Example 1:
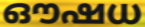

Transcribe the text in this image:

ഔഷധ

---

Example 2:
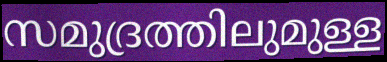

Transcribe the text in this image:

സമുദ്രത്തിലുമുള്ള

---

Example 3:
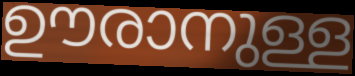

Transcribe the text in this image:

ഊരാനുള്ള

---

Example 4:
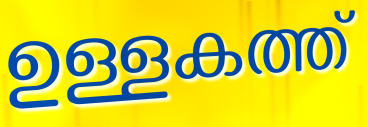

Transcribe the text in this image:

ഉള്ളകത്ത്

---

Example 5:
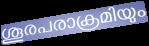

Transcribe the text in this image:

ശൂരപരാക്രമിയും